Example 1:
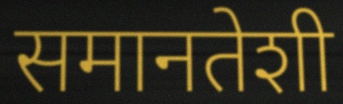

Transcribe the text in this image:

समानतेशी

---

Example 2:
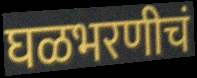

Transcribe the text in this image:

घळभरणीचं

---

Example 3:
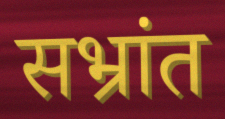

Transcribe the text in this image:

सभ्रांत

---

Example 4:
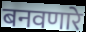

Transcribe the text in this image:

बनवणारे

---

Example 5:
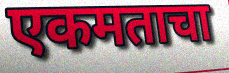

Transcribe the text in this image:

एकमताचा